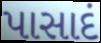
પાસાદં